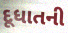
દૂધાતની